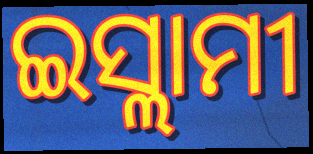
ଇସ୍ଲାମୀ